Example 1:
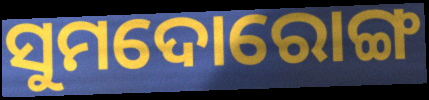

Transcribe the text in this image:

ସୁମଦୋରୋଙ୍ଗ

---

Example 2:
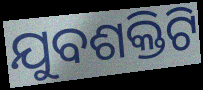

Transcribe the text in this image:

ଯୁବଶକ୍ତିଟି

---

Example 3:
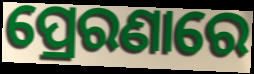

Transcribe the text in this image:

ପ୍ରେରଣାରେ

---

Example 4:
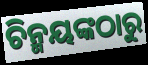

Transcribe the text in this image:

ଚିନ୍ମୟଙ୍କଠାରୁ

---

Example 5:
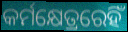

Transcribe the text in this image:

କର୍ମକ୍ଷେତ୍ରରେହିଁ